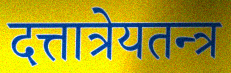
दत्तात्रेयतन्त्र